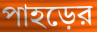
পাহড়ের